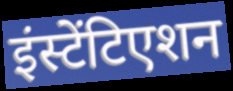
इंस्टेंटिएशन